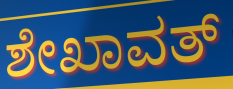
ಶೇಖಾವತ್